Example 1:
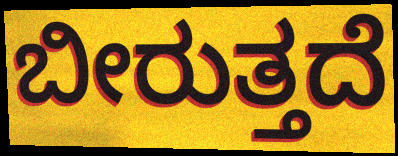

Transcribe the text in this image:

ಬೀರುತ್ತದೆ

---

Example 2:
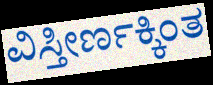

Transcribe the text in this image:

ವಿಸ್ತೀರ್ಣಕ್ಕಿಂತ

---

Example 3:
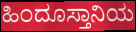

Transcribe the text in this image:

ಹಿಂದೂಸ್ತಾನಿಯ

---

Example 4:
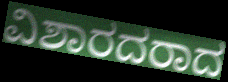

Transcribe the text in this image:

ವಿಶಾರದರಾದ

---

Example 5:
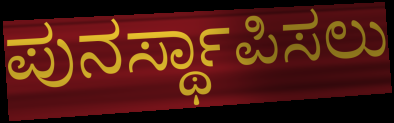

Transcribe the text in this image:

ಪುನರ್ಸ್ಥಾಪಿಸಲು